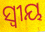
ସ୍ୱୀୟ